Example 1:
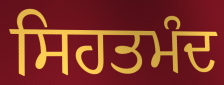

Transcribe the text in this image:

ਸਿਹਤਮੰਦ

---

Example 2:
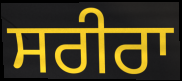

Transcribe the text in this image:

ਸਰੀਰਾ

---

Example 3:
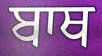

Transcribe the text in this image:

ਬਾਥ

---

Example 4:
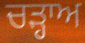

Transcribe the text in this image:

ਚੜ੍ਹਾਅ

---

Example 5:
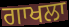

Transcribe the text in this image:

ਗਾਖਲਾ